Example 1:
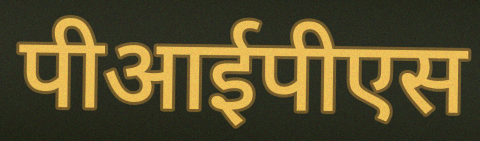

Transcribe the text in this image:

पीआईपीएस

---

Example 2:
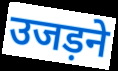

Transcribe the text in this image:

उजड़ने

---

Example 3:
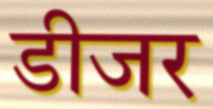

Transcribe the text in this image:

डीजर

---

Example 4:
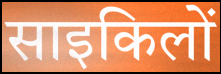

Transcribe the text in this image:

साइकिलों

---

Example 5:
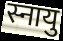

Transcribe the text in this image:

स्नायु